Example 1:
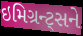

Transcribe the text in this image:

ઇમિગ્રન્ટ્સને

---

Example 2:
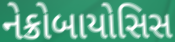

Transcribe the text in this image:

નેક્રોબાયોસિસ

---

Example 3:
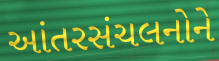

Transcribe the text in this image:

આંતરસંચલનોને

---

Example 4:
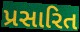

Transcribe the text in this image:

પ્રસારિત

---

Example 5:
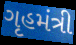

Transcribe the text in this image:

ગૃહમંત્રી